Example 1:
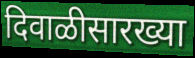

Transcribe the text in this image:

दिवाळीसारख्या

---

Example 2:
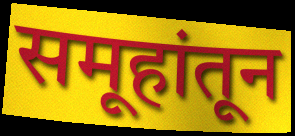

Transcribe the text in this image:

समूहांतून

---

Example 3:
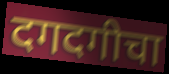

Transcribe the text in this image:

दगदगीचा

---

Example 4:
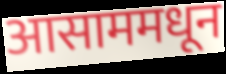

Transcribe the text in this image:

आसाममधून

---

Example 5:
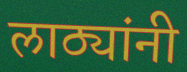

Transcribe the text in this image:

लाठ्यांनी